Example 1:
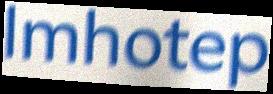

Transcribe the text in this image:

Imhotep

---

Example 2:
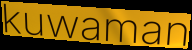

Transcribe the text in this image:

kuwaman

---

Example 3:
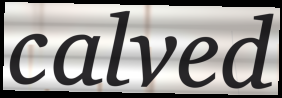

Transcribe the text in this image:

calved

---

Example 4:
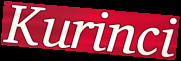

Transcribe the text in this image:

Kurinci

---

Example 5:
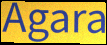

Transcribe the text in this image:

Agara